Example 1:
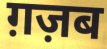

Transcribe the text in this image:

ग़ज़ब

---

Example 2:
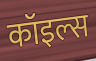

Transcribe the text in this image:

कॉइल्स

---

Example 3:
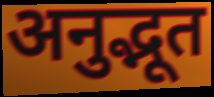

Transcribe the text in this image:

अनुद्भूत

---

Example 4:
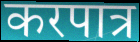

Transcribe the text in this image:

करपात्र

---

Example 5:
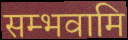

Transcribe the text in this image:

सम्भवामि